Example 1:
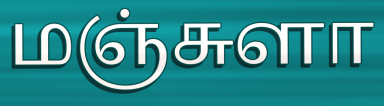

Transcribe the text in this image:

மஞ்சுளா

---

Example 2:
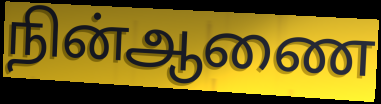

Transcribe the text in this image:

நின்ஆணை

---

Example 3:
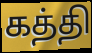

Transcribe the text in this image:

கத்தி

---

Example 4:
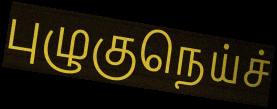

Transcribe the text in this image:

புழுகுநெய்ச்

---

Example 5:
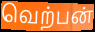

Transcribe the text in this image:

வெற்பன்